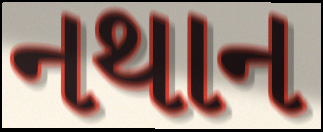
નથાન